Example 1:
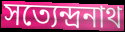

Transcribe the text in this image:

সত্যেন্দ্ৰনাথ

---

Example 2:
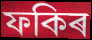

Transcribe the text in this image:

ফকিৰ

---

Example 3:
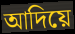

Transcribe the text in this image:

আদিয়ে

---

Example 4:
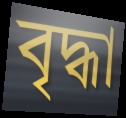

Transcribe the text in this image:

বৃদ্ধা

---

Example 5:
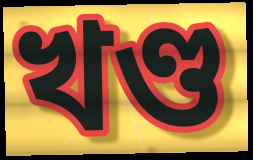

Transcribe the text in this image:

খণ্ড